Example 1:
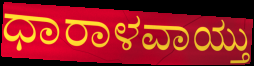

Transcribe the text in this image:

ಧಾರಾಳವಾಯ್ತು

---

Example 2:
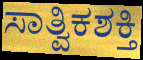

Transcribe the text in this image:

ಸಾತ್ವಿಕಶಕ್ತಿ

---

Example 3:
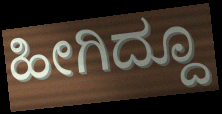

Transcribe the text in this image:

ಹೀಗಿದ್ದೂ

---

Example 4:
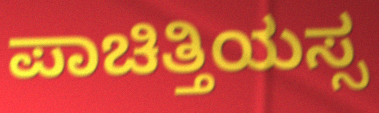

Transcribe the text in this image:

ಪಾಚಿತ್ತಿಯಸ್ಸ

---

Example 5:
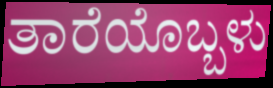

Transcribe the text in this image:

ತಾರೆಯೊಬ್ಬಳು